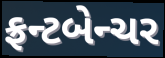
ફ્રન્ટબેન્ચર